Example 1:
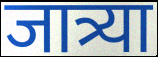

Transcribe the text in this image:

जात्र्या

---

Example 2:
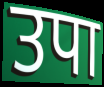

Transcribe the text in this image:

उपा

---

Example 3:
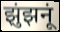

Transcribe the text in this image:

झुंझनूं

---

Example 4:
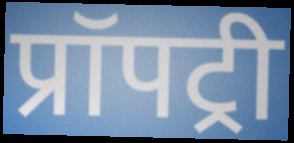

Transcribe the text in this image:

प्रॉपट्री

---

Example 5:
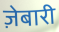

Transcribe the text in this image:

ज़ेबारी